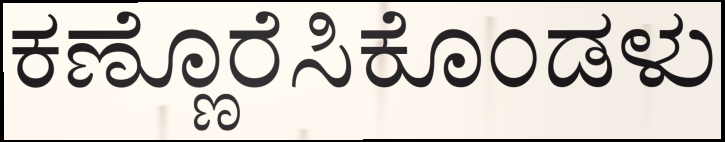
ಕಣ್ಣೊರೆಸಿಕೊಂಡಳು